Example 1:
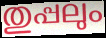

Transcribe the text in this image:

തുപ്പലും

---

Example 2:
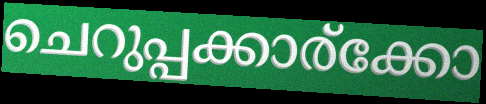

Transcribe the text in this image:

ചെറുപ്പക്കാര്ക്കോ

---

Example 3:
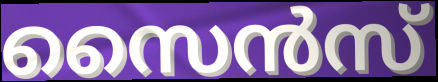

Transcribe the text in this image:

സൈൻസ്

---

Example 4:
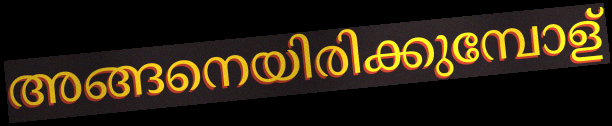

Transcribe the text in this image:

അങ്ങനെയിരിക്കുമ്പോള്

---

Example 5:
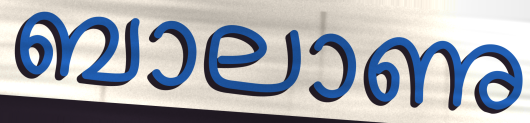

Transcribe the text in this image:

ബാലാണു